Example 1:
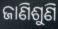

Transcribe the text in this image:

ଜାଣିଶୁଣି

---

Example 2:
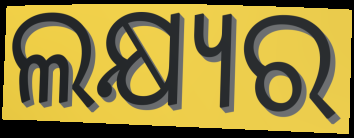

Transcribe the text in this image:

ଲକ୍ଷ୍ୟର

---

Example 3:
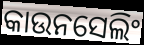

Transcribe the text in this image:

କାଉନସେଲିଂ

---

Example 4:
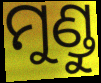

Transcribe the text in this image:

ମୁଣ୍ଡୁ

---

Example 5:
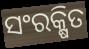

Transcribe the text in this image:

ସଂରକ୍ଷିତ